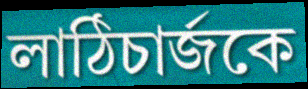
লাঠিচার্জকে